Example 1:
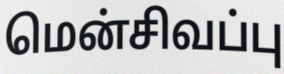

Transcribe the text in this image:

மென்சிவப்பு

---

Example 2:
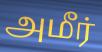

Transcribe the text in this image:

அமீர்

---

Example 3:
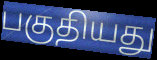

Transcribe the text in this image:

பகுதியது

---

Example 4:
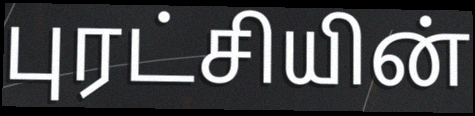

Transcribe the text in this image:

புரட்சியின்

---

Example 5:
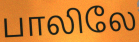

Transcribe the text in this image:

பாலிலே